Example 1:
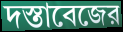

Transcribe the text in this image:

দস্তাবেজের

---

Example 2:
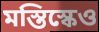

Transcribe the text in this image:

মস্তিস্কেও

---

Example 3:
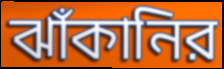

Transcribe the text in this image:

ঝাঁকানির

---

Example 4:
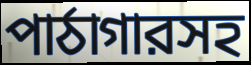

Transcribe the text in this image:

পাঠাগারসহ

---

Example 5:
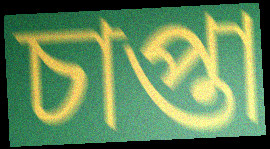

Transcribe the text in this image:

চাপ্তা